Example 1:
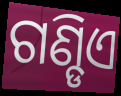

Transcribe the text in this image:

ଗଣ୍ଡିଏ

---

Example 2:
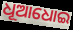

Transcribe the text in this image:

ଧୂଆଧୋଇ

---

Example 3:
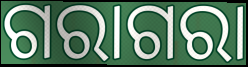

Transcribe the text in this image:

ଗରାଗରା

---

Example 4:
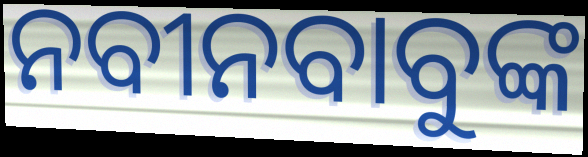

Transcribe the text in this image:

ନବୀନବାବୁଙ୍କ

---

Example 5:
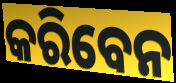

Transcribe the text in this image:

କରିବେନ